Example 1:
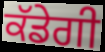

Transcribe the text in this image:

ਕੱਡੇਗੀ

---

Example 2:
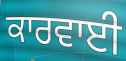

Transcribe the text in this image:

ਕਾਰਵਾਈ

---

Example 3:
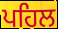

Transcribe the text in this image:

ਪਹਿਲ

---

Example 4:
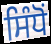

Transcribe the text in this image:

ਸਿੰਧੋਂ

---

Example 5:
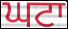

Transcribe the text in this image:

ਘਟਾ